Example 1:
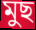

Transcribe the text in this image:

মুছ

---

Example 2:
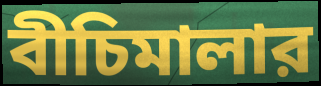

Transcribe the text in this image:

বীচিমালার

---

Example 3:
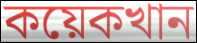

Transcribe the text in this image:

কয়েকখান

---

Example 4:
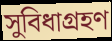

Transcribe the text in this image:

সুবিধাগ্রহণ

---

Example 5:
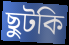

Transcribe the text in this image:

ছুটকি